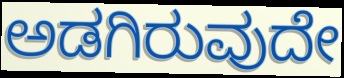
ಅಡಗಿರುವುದೇ